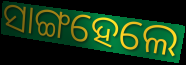
ସାଙ୍ଗହେଲେ